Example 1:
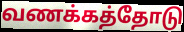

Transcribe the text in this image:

வணக்கத்தோடு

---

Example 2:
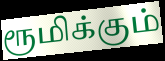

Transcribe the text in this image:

ரூமிக்கும்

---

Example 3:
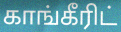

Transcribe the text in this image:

காங்கீரிட்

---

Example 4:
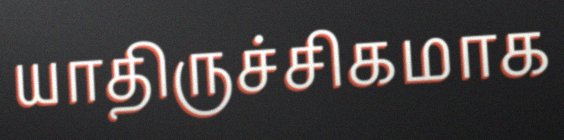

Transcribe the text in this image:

யாதிருச்சிகமாக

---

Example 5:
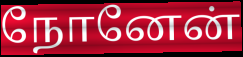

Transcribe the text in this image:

நோனேன்